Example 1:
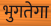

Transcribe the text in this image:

भुगतेगा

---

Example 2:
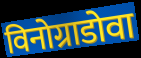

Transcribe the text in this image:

विनोग्राडोवा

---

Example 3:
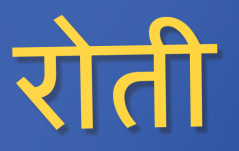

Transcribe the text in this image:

रोती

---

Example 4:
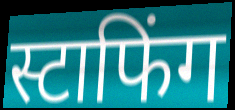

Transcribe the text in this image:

स्टाफिंग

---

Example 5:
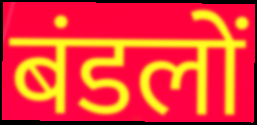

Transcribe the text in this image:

बंडलों